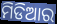
ମିଡିଆର